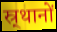
स्र्थानों